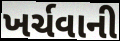
ખર્ચવાની